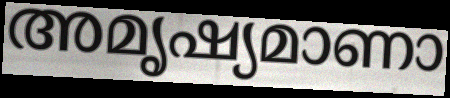
അമൃഷ്യമാണാ